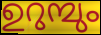
ഉറുമ്പും